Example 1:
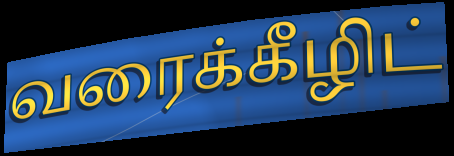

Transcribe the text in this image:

வரைக்கீழிட்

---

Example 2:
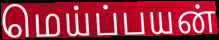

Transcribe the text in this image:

மெய்ப்பயன்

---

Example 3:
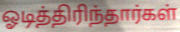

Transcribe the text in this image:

ஓடித்திரிந்தார்கள்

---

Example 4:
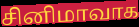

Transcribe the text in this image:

சினிமாவாக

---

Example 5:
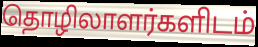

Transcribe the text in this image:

தொழிலாளர்களிடம்